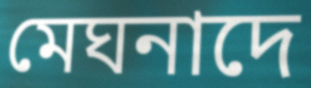
মেঘনাদে